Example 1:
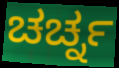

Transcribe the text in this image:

ಚರ್ಚ್ನ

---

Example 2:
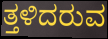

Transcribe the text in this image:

ತ್ತಳಿದರುವ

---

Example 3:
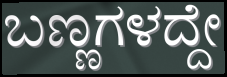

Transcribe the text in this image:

ಬಣ್ಣಗಳದ್ದೇ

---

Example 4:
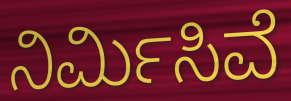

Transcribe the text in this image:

ನಿರ್ಮಿಸಿವೆ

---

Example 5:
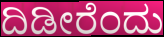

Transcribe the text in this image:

ದಿಡೀರೆಂದು